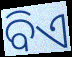
ବିଏ